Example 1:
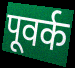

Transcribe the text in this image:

पूवर्क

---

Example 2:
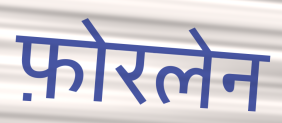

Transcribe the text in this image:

फ़ोरलेन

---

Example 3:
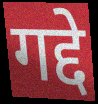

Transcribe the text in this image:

गद्दे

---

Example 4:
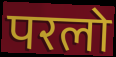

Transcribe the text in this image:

परलो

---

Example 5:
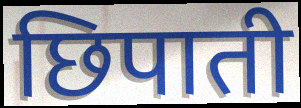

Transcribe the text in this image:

छिपाती